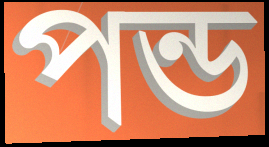
পন্ড